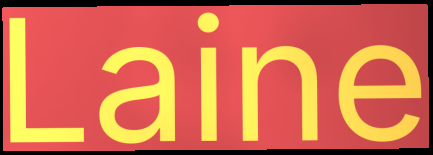
Laine